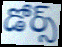
డోర్స్